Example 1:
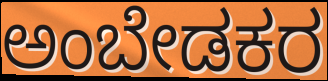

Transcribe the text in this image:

ಅಂಬೇಡಕರ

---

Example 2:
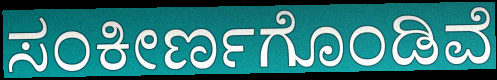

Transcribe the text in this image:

ಸಂಕೀರ್ಣಗೊಂಡಿವೆ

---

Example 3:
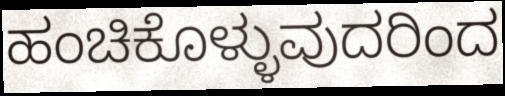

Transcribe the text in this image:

ಹಂಚಿಕೊಳ್ಳುವುದರಿಂದ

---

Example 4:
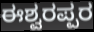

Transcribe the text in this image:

ಈಶ್ವರಪ್ಪರ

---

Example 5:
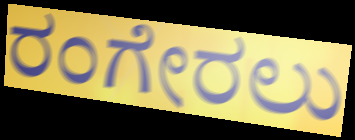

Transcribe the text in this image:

ರಂಗೇರಲು